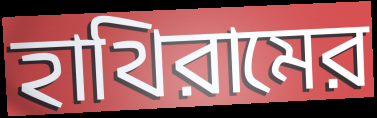
হাথিরামের